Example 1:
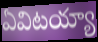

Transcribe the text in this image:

ఏవిటయ్యా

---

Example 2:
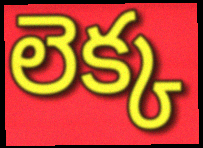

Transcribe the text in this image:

లెక్క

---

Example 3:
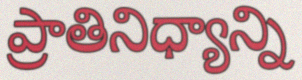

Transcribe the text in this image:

ప్రాతినిధ్యాన్ని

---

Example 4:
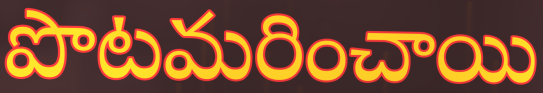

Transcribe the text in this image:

పొటమరించాయి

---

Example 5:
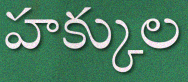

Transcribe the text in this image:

హక్కుల